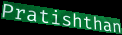
Pratishthan